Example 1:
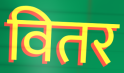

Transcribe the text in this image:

वितर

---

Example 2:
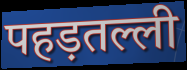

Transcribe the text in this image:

पहड़तल्ली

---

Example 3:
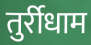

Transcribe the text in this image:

तुर्रीधाम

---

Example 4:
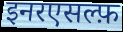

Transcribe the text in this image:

इनरएसल्फ़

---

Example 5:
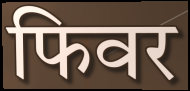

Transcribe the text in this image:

फिवर